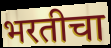
भरतीचा